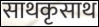
साथकृसाथ